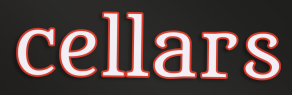
cellars